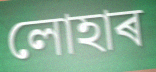
লোহাৰ